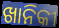
ଖାନିକୀ